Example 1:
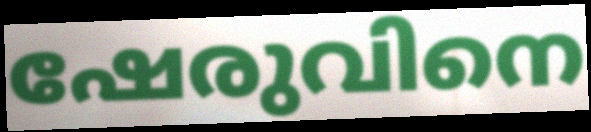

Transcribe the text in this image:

ഷേരുവിനെ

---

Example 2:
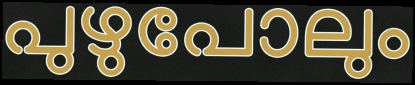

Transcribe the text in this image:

പുഴുപോലും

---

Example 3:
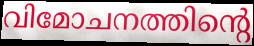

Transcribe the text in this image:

വിമോചനത്തിന്റെ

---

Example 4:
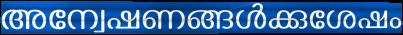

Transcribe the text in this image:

അന്വേഷണങ്ങൾക്കുശേഷം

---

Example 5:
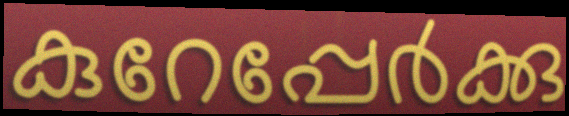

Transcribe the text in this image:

കുറേപ്പേർക്കു